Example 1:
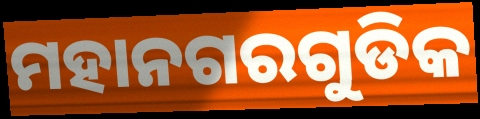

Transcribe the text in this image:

ମହାନଗରଗୁଡିକ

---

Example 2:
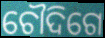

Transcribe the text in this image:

ଚୌଦିଗେ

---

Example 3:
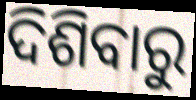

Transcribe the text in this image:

ଦିଶିବାରୁ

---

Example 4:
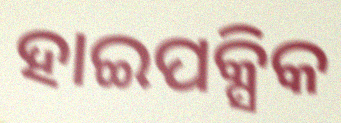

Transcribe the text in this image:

ହାଇପକ୍ସିକ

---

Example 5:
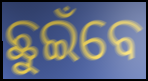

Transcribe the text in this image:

ଛୁଇଁବେ